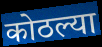
कोठल्या